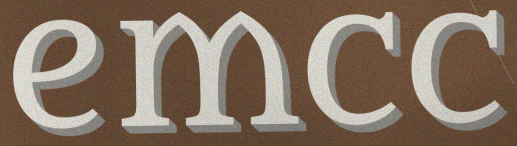
emcc